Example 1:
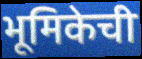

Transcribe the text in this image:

भूमिकेची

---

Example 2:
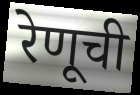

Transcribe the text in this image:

रेणूची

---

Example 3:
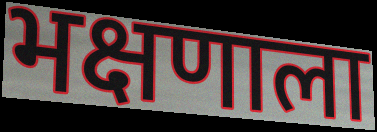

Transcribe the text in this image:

भक्षणाला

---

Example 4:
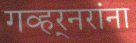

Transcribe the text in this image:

गव्हर्नरांना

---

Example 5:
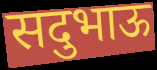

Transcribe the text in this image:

सदुभाऊ